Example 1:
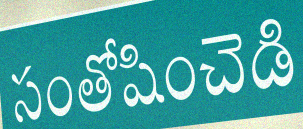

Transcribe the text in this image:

సంతోషించెడి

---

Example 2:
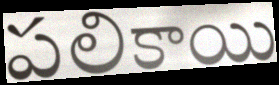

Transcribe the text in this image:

పలికాయి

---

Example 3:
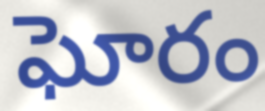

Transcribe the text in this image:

ఘోరం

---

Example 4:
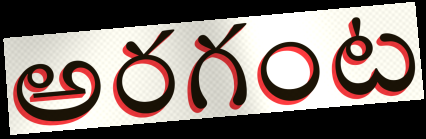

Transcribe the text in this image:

అరగంట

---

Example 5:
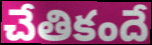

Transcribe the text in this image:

చేతికందే